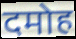
दमोह